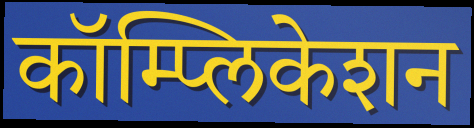
कॉम्प्लिकेशन